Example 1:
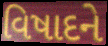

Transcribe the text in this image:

વિષાદને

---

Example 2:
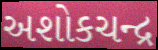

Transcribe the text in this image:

અશોકચન્દ્ર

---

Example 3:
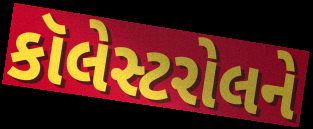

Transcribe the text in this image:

કૉલેસ્ટરોલને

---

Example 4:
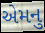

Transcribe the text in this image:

એમનુ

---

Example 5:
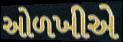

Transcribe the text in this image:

ઓળખીએ